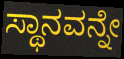
ಸ್ಥಾನವನ್ನೇ